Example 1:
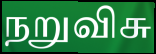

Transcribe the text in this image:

நறுவிசு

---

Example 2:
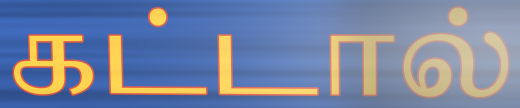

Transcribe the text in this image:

கட்டால்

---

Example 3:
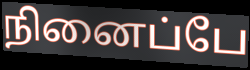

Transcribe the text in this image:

நினைப்பே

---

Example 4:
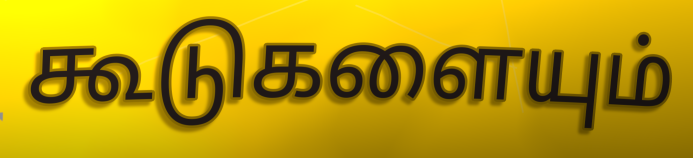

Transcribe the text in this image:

கூடுகளையும்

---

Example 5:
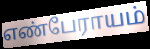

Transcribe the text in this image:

எண்பேராயம்